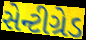
સેન્ટીગ્રેડ